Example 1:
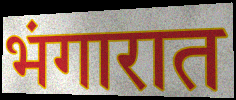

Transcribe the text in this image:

भंगारात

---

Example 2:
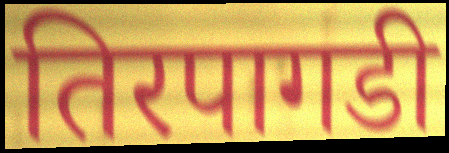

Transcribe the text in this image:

तिरपागडी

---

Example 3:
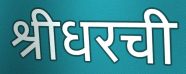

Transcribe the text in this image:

श्रीधरची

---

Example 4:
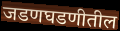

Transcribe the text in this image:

जडणघडणीतील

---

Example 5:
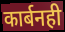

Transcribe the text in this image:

कार्बनही